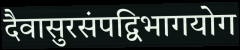
दैवासुरसंपद्विभागयोग